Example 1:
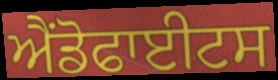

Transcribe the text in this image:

ਐਂਡੋਫਾਈਟਸ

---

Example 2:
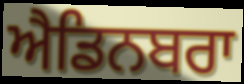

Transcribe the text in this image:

ਐਡਿਨਬਰਾ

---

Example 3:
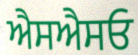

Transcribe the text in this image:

ਐਸਐਸਓ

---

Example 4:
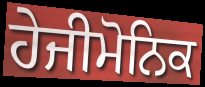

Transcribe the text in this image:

ਹੇਜੀਮੋਨਿਕ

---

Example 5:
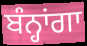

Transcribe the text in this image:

ਬੰਨ੍ਹਾਂਗਾ